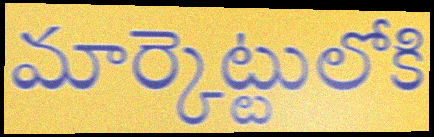
మార్కెట్టులోకి